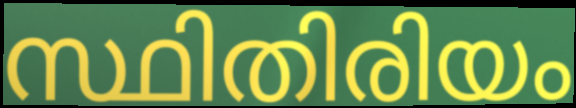
സ്ഥിതിരിയം